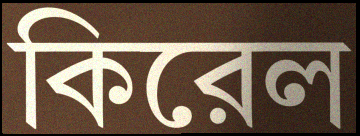
কিরেল